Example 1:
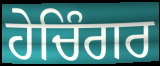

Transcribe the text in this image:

ਹੇਚਿੰਗਰ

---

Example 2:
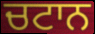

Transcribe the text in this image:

ਚਟਾਨ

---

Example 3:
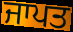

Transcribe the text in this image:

ਜਾਪਤ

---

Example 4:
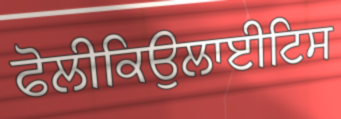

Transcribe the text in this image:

ਫੋਲੀਕਿਉਲਾਈਟਿਸ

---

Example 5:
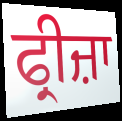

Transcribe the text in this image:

ਫ੍ਰੀਜ਼ਾ